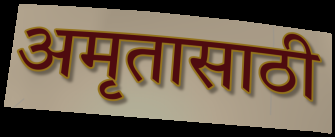
अमृतासाठी